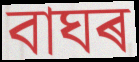
বাঘৰ